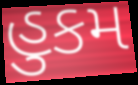
હુકમ